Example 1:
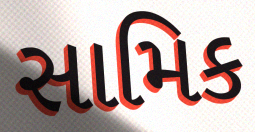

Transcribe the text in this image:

સામિક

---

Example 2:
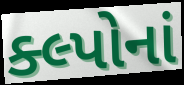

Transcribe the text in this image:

ક્લ્પોનાં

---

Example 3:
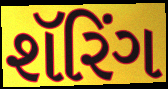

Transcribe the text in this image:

શૅરિંગ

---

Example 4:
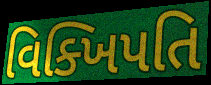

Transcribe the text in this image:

વિક્ખિપતિ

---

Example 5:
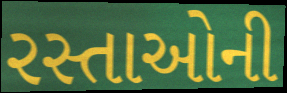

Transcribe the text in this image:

રસ્તાઓની